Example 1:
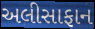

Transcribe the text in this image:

અલીસાફાન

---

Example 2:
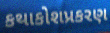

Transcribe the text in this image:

કથાકોશપ્રકરણ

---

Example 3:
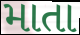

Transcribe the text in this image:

માતા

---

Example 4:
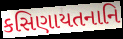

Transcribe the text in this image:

કસિણાયતનાનિ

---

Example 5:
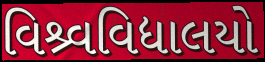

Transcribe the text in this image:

વિશ્ર્વવિદ્યાલયો